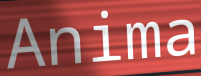
Anima